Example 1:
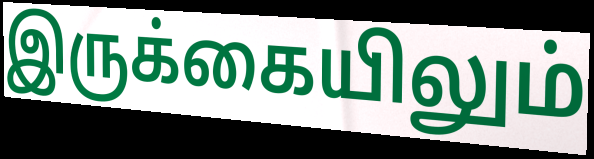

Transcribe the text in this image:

இருக்கையிலும்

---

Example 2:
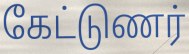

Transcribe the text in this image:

கேட்டுணர்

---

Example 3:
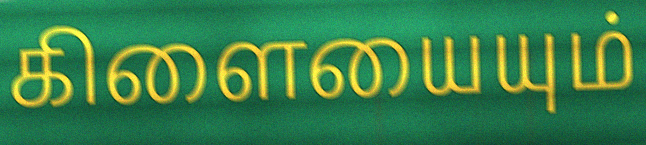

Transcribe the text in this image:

கிளையையும்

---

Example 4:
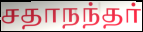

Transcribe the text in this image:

சதாநந்தர்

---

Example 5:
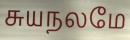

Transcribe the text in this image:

சுயநலமே